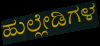
ಹುಲ್ಲೇಡಿಗಳ